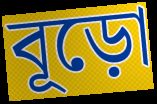
বূড়ো